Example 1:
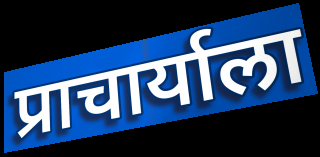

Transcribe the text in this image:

प्राचार्याला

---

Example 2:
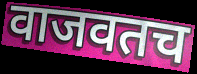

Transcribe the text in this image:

वाजवतच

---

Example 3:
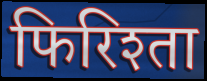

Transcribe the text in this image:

फिरिश्ता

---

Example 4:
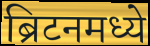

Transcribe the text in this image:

ब्रिटनमध्ये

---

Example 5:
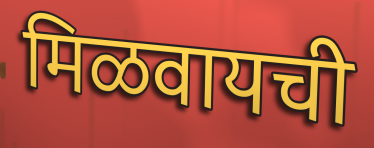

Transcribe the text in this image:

मिळवायची